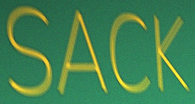
SACK